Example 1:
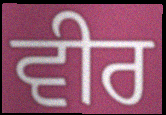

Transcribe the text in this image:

ਵੀਰ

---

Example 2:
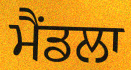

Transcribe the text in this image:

ਮੈਂਡਲਾ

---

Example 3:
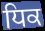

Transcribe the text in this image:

ਧਿਕ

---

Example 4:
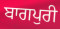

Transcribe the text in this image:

ਬਾਗਪੁਰੀ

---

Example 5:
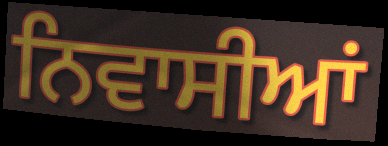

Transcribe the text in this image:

ਨਿਵਾਸੀਆਂ